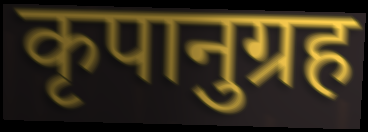
कृपानुग्रह